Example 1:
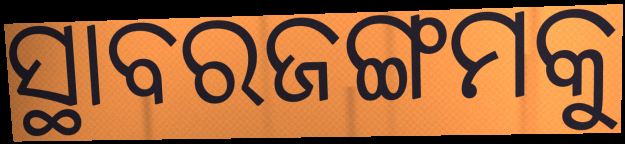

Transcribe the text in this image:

ସ୍ଥାବରଜଙ୍ଗମକୁ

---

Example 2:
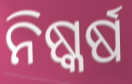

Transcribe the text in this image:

ନିଷ୍କର୍ଷ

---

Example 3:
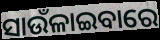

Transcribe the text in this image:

ସାଉଁଳାଇବାରେ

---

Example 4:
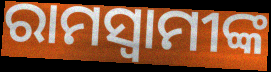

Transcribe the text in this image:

ରାମସ୍ୱାମୀଙ୍କ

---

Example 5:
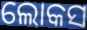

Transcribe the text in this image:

ଲୋକସ